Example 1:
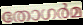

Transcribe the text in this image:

തോഗർമ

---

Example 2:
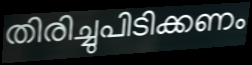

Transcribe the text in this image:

തിരിച്ചുപിടിക്കണം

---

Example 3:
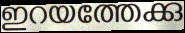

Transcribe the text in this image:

ഇറയത്തേക്കു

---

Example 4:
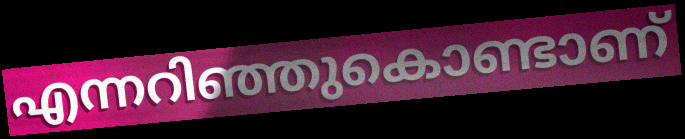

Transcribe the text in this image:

എന്നറിഞ്ഞുകൊണ്ടാണ്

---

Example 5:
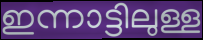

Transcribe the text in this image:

ഇന്നാട്ടിലുള്ള